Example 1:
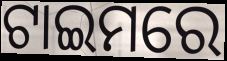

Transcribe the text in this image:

ଟାଇମରେ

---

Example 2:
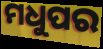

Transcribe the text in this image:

ମଧୁପର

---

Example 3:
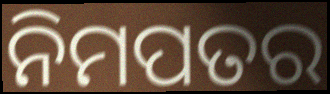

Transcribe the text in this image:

ନିମପତର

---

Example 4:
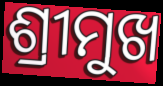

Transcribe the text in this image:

ଶ୍ରୀମୁଖ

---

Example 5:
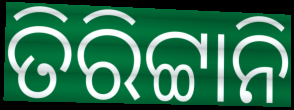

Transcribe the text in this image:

ତିରିଟ୍ଟାନି